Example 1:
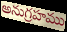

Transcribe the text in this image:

అనుగ్రహము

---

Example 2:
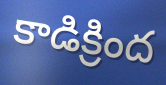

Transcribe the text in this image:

కాడిక్రింద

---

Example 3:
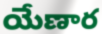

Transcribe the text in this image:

యేణార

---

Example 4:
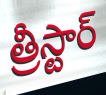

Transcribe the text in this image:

త్రీస్టార్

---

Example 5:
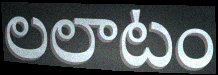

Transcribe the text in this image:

లలాటం